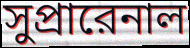
সুপ্রারেনাল